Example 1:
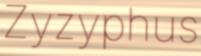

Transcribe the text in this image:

Zyzyphus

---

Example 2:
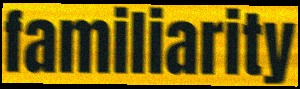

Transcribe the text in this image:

familiarity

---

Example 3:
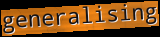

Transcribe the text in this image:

generalising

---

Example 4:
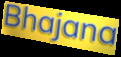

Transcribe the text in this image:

Bhajana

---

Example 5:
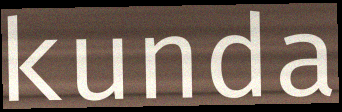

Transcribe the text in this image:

kunda